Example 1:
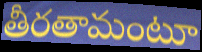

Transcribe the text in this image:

తీరతామంటూ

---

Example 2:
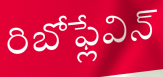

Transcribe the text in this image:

రిబోఫ్లేవిన్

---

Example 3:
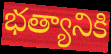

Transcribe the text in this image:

భత్యానికి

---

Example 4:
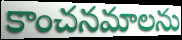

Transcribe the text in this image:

కాంచనమాలను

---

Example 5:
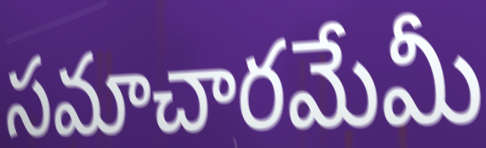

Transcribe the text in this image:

సమాచారమేమీ